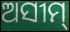
ଅସୀମ୍